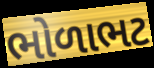
ભોળાભટ